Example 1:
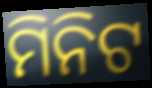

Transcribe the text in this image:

ମିନିଟ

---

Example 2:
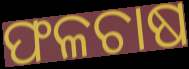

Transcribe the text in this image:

ଫଳଚାଷ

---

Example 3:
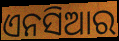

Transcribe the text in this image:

ଏନସିଆର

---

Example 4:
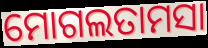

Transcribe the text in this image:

ମୋଗଲତାମସା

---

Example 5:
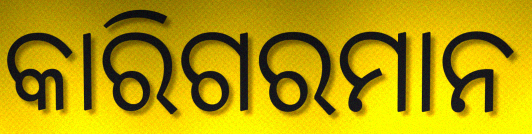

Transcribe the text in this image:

କାରିଗରମାନ